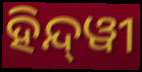
ହିନ୍ଦ୍‍ୱୀ